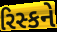
રિસ્કને